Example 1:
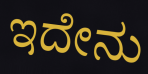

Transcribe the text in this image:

ಇದೇನು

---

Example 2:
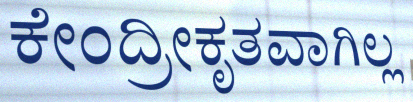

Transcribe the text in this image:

ಕೇಂದ್ರೀಕೃತವಾಗಿಲ್ಲ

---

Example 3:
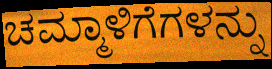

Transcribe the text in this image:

ಚಮ್ಮಾಳಿಗೆಗಳನ್ನು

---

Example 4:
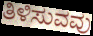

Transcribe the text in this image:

ತಿಳಿಸುವವು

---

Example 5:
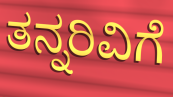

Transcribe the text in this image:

ತನ್ನರಿವಿಗೆ